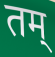
तम्